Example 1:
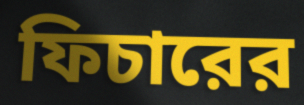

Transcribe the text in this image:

ফিচারের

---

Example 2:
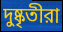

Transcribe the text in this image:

দুষ্কৃতীরা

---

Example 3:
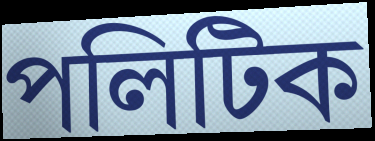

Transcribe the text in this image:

পলিটিক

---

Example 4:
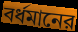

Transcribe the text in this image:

বর্ধমানের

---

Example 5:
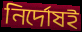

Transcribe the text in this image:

নির্দোষই